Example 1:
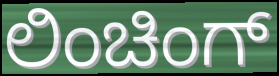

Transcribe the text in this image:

ಲಿಂಚಿಂಗ್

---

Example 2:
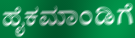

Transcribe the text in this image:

ಹೈಕಮಾಂಡಿಗೆ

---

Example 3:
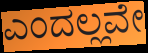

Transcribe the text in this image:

ಎಂದಲ್ಲವೇ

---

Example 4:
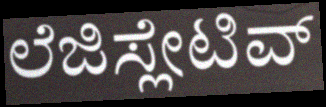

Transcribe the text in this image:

ಲೆಜಿಸ್ಲೇಟಿವ್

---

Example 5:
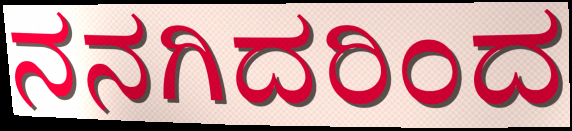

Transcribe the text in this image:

ನನಗಿದರಿಂದ